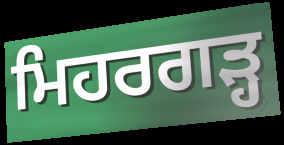
ਮਿਹਰਗੜ੍ਹ